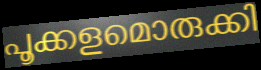
പൂക്കളമൊരുക്കി